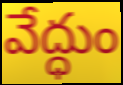
వేద్ధుం